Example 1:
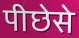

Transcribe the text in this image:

पीछेसे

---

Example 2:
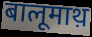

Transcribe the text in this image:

बालूमाथ़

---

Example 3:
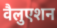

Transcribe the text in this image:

वैलुएशन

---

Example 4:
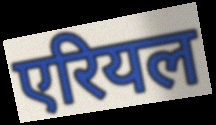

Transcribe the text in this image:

एरियल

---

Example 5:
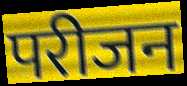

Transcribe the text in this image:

परीजन